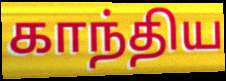
காந்திய